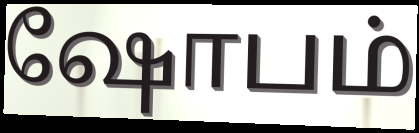
ஷோபம்